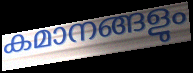
കമാനങ്ങളും